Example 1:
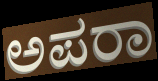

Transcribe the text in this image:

ಅಪರಾ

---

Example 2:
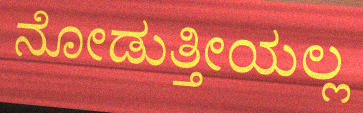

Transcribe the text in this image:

ನೋಡುತ್ತೀಯಲ್ಲ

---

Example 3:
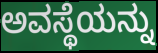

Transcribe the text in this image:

ಅವಸ್ಥೆಯನ್ನು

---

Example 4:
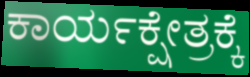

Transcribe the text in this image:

ಕಾರ್ಯಕ್ಷೇತ್ರಕ್ಕೆ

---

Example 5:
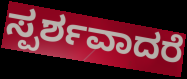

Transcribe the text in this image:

ಸ್ಪರ್ಶವಾದರೆ